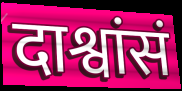
दाश्वांसं